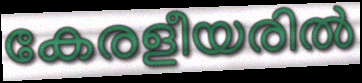
കേരളീയരിൽ